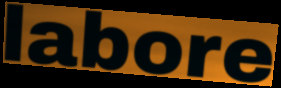
labore